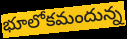
భూలోకమందున్న